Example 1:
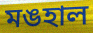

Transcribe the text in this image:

মঙহাল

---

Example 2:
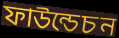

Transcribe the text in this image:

ফাউন্ডেচন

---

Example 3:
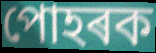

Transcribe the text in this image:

পোহৰক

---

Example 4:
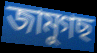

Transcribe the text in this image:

জামুগছ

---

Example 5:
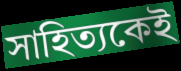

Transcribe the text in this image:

সাহিত্য়কেই